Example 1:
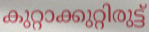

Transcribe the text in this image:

കുറ്റാക്കുറ്റിരുട്ട്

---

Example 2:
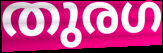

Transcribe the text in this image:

തുരഗ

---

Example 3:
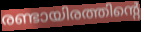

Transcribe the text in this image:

രണ്ടായിരത്തിന്റെ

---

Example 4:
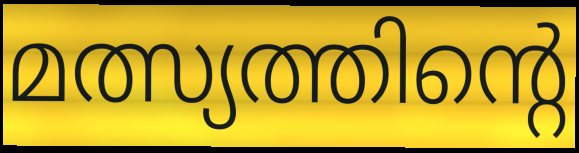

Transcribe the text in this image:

മത്സ്യത്തിന്റെ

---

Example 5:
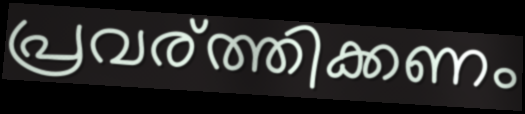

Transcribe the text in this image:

പ്രവര്ത്തിക്കണം